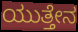
ಯುತ್ತೇನ